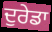
ਦੁਰੇਡਾ